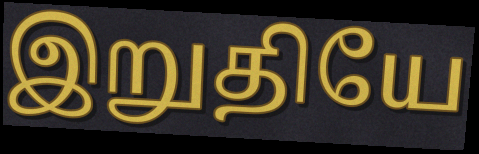
இறுதியே